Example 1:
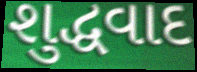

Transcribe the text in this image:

શુદ્ધવાદ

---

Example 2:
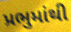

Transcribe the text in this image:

પ્રભુમાંથી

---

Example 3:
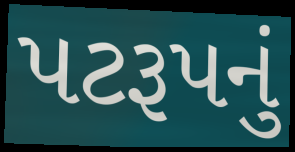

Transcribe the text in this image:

પટરૂપનું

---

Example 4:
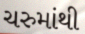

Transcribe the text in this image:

ચરુમાંથી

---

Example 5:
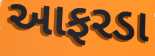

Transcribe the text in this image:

આફરડા